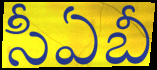
సీఏబీ